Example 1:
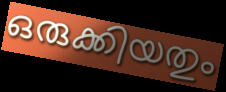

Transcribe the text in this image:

ഒരുക്കിയതും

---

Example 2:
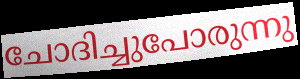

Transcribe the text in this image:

ചോദിച്ചുപോരുന്നു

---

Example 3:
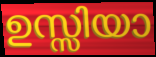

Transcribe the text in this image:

ഉസ്സിയാ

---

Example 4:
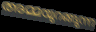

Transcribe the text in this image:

അമ്മയുറങ്ങുന്ന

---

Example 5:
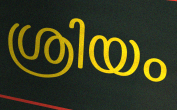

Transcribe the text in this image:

ശ്രിയം